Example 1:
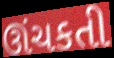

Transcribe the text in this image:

ઊંચકતી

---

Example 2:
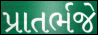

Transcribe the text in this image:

પ્રાતર્ભજે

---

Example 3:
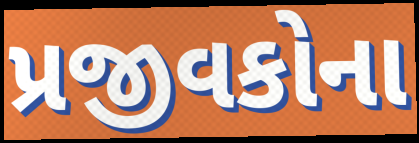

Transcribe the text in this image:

પ્રજીવકોના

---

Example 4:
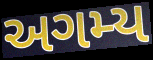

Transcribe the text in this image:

અગમ્ય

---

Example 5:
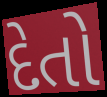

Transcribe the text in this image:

દેતો